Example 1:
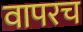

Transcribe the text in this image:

वापरच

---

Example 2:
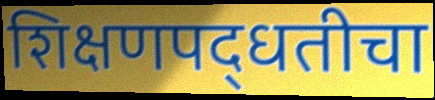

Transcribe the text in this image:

शिक्षणपद्धतीचा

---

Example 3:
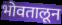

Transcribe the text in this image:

भोवतालून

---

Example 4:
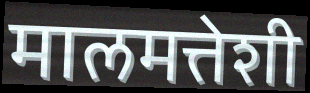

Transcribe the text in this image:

मालमत्तेशी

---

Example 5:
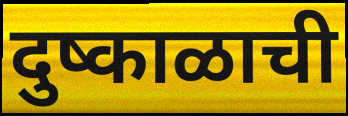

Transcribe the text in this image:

दुष्काळाची